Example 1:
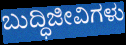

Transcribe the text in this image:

ಬುದ್ಧಿಜೀವಿಗಳು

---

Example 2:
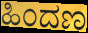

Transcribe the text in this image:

ಹಿಂದಣ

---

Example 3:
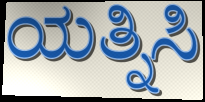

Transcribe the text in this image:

ಯತ್ನಿಸಿ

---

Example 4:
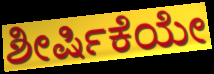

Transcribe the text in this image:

ಶೀರ್ಷಿಕೆಯೇ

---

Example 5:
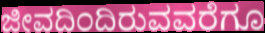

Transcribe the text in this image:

ಜೀವದಿಂದಿರುವವರೆಗೂ